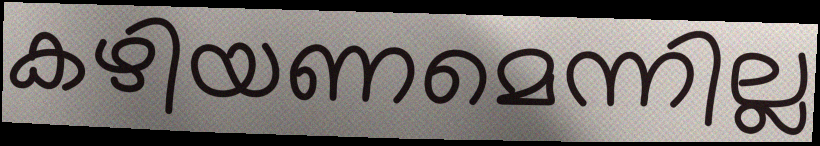
കഴിയണമെന്നില്ല